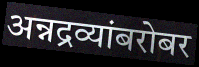
अन्नद्रव्यांबरोबर